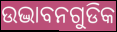
ଉଦ୍ଭାବନଗୁଡିକ